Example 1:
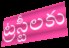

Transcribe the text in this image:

ట్రస్టీలకు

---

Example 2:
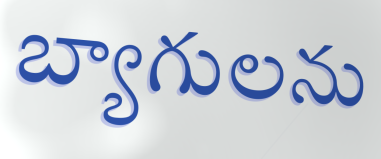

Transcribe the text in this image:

బ్యాగులను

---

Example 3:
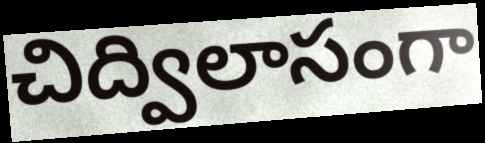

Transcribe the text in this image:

చిద్విలాసంగా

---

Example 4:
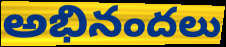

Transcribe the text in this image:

అభినందలు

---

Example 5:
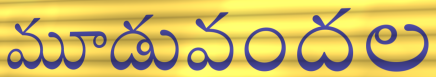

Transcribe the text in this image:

మూడువందల